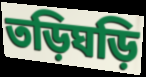
তড়িঘড়ি